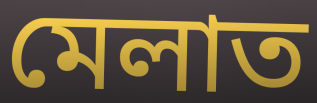
মেলাত